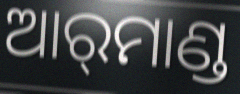
ଆର୍‌ମାଣ୍ଡ